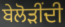
ਬੇਲੋੜੀਂਦੀ